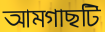
আমগাছটি